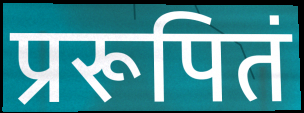
प्ररूपितं